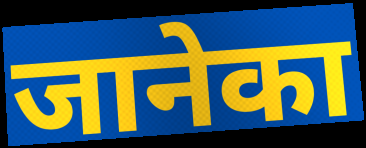
जानेका